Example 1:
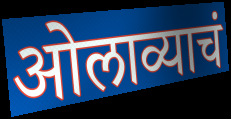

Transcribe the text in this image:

ओलाव्याचं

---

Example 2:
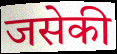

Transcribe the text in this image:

जसेकी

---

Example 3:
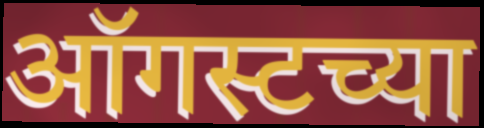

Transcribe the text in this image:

ऑगस्टच्या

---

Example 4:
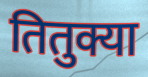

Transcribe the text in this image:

तितुक्या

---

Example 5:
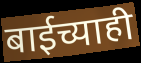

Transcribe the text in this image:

बाईच्याही